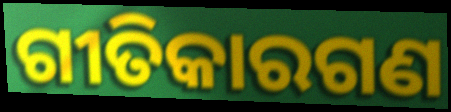
ଗୀତିକାରଗଣ